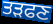
ਤੜਫਣ